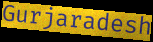
Gurjaradesh